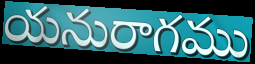
యనురాగము